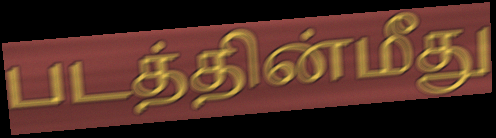
படத்தின்மீது